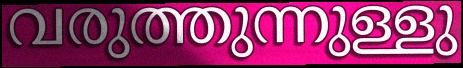
വരുത്തുന്നുള്ളു